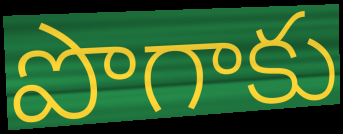
పొగాకు